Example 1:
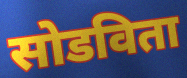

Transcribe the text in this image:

सोडविता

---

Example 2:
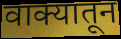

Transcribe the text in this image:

वाक्यातून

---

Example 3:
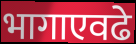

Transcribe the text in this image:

भागाएवढे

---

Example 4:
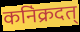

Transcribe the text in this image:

कनि॑क्रदत्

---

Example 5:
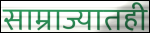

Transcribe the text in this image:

साम्राज्यातही